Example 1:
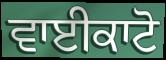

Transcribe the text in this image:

ਵਾਈਕਾਟੋ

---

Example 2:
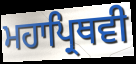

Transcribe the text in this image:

ਮਹਾਪ੍ਰਿਥਵੀ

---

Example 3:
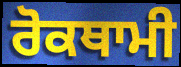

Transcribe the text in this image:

ਰੋਕਥਾਮੀ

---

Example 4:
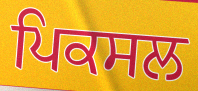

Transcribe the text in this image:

ਪਿਕਸਲ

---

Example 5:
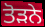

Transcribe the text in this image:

ਤੋੜਨੇ